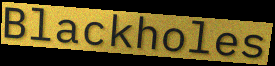
Blackholes